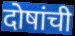
दोषांची